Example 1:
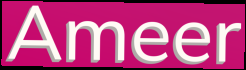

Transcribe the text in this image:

Ameer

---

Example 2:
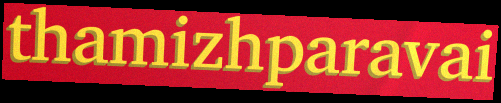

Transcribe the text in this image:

thamizhparavai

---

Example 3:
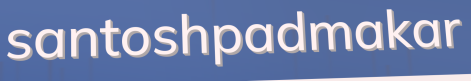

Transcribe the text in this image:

santoshpadmakar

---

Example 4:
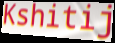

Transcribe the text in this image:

Kshitij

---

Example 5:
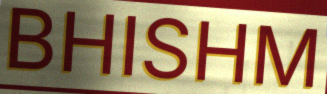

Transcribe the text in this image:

BHISHM